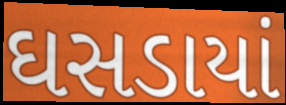
ઘસડાયાં